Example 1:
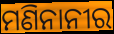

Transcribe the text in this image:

ମଣିନାନୀର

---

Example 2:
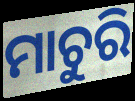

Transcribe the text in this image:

ମାଚୁରି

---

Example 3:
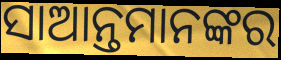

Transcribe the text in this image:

ସାଆନ୍ତମାନଙ୍କର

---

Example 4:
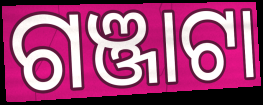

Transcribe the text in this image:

ଗଞ୍ଜାଟା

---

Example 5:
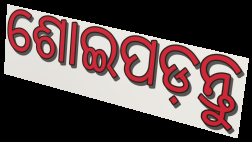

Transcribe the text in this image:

ଶୋଇପଡ଼ନ୍ତୁ